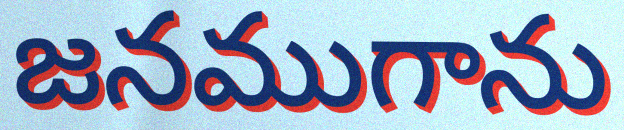
జనముగాను